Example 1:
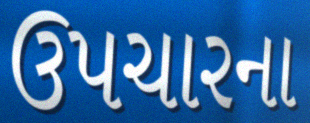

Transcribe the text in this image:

ઉપચારના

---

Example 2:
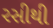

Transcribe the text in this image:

રસીથી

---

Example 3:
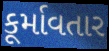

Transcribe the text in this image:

કૂર્માવતાર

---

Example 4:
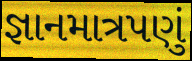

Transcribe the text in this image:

જ્ઞાનમાત્રપણું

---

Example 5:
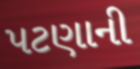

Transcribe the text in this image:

પટણાની